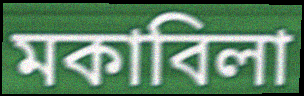
মকাবিলা